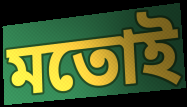
মতোই